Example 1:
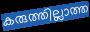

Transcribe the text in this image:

കരുത്തില്ലാത്ത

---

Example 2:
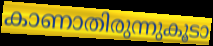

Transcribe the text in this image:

കാണാതിരുന്നുകൂടാ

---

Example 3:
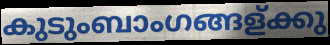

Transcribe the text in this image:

കുടുംബാംഗങ്ങള്ക്കു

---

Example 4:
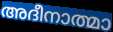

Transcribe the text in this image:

അദീനാത്മാ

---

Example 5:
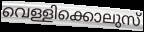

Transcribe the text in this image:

വെള്ളിക്കൊലുസ്